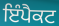
ਇੰਪੈਕਟ